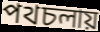
পথচলায়